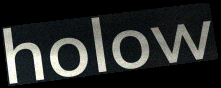
holow